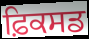
ਫ਼ਿਕਸਡ